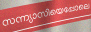
സന്ന്യാസിയെപ്പോലെ